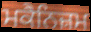
ਮਕੈਨਿਜ਼ਮ